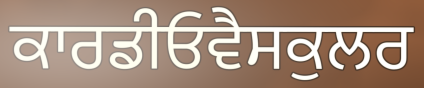
ਕਾਰਡੀਓਵੈਸਕੁਲਰ